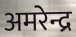
अमरेन्द्र